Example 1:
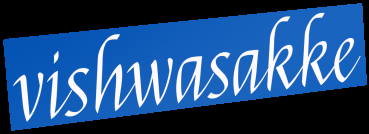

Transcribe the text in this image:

vishwasakke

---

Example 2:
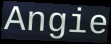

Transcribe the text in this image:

Angie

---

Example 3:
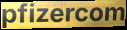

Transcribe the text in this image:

pfizercom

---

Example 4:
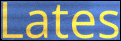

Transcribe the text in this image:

Lates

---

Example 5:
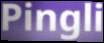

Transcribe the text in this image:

Pingli